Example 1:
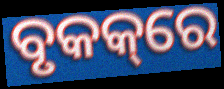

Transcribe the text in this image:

ବୃକକ୍‌ରେ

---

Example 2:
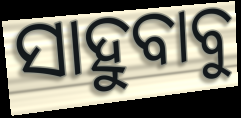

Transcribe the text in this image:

ସାହୁବାବୁ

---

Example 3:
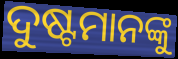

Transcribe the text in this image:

ଦୁଷ୍ଟମାନଙ୍କୁ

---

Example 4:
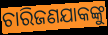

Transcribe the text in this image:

ଚାରିଜଣଯାକଙ୍କୁ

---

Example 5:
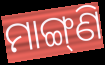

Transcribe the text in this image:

ମାଙ୍ଗ୍‌ଣି